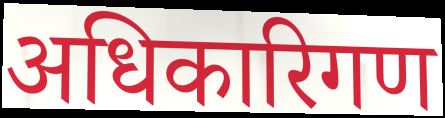
अधिकारिगण